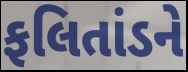
ફલિતાંડને